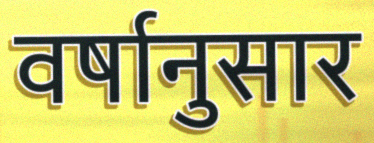
वर्षानुसार